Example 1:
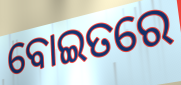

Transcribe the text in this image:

ବୋଇତରେ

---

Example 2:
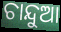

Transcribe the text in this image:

ଚାନ୍ଦୁଆ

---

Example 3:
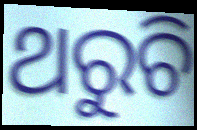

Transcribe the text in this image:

ଥରୁଚି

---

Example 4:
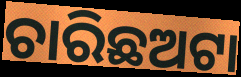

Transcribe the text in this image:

ଚାରିଛଅଟା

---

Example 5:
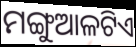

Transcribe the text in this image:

ମଙ୍ଗୁଆଳଟିଏ